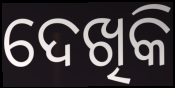
ଦେଖିକି